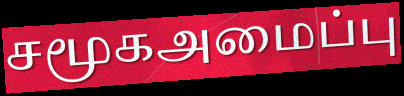
சமூகஅமைப்பு